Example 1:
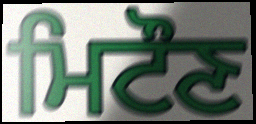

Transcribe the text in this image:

ਮਿਟੌਣ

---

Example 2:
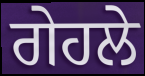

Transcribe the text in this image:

ਗੇਹਲੇ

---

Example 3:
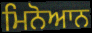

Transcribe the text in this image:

ਮਿਨੋਆਨ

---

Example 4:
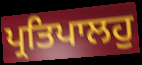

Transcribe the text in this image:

ਪ੍ਰਤਿਪਾਲਹੁ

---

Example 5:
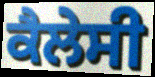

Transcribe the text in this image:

ਕੈਲੇਸੀ